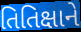
તિતિક્ષાને